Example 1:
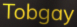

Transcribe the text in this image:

Tobgay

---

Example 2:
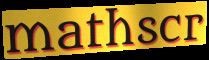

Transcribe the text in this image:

mathscr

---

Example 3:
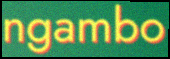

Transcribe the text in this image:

ngambo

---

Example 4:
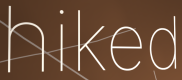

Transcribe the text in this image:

hiked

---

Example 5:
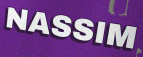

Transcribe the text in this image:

NASSIM